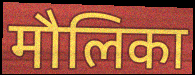
मौलिका